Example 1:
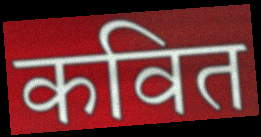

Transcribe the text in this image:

कवित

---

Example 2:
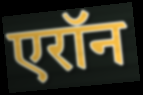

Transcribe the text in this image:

एरॉन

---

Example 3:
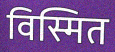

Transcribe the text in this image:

विस्मित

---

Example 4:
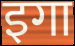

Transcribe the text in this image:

इगा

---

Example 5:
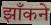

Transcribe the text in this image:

झाँकने